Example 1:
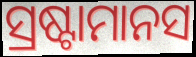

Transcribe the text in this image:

ସ୍ରଷ୍ଟାମାନସ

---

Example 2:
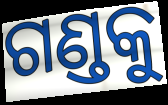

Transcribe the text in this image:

ଗଣ୍ଡକୁ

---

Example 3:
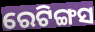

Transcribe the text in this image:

ରେଟିଙ୍ଗସ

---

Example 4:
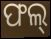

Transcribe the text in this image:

ଫଲ୍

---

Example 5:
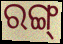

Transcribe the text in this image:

ରଙ୍ଗ୍